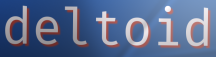
deltoid